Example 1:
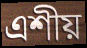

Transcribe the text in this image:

এশীয়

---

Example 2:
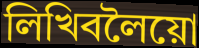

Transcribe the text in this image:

লিখিবলৈয়ো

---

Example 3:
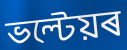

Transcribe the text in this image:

ভল্টেয়ৰ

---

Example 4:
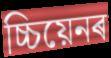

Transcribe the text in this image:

চ্চিয়েনৰ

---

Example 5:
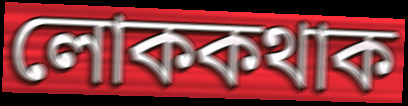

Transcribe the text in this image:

লোককথাক